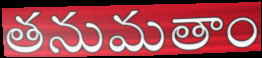
తనుమతాం